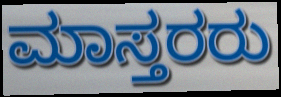
ಮಾಸ್ತರರು